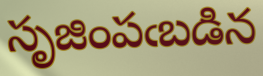
సృజింపఁబడిన